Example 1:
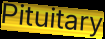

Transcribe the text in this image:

Pituitary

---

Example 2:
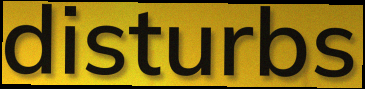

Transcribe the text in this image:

disturbs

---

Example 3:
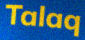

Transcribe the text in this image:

Talaq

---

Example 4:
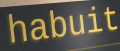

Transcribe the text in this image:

habuit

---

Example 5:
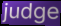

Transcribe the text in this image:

judge